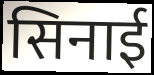
सिनाई